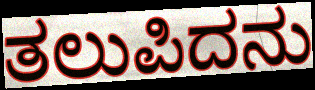
ತಲುಪಿದನು